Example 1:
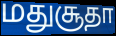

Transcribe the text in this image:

மதுசூதா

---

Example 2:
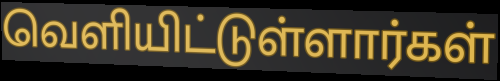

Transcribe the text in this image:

வெளியிட்டுள்ளார்கள்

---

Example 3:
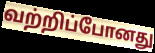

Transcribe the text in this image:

வற்றிப்போனது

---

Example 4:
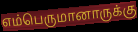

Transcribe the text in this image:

எம்பெருமானாருக்கு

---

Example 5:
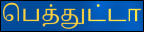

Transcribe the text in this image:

பெத்துட்டா